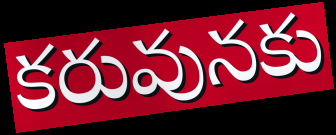
కరువునకు